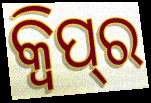
କ୍ଵିପ୍‌ର